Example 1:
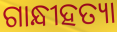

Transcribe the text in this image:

ଗାନ୍ଧୀହତ୍ୟା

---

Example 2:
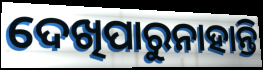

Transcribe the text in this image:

ଦେଖିପାରୁନାହାନ୍ତି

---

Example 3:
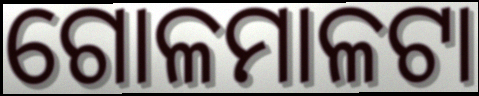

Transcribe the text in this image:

ଗୋଳମାଳଟା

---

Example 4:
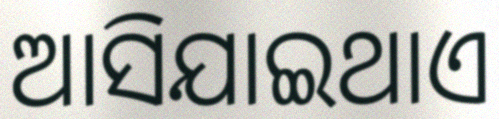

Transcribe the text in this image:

ଆସିଯାଇଥାଏ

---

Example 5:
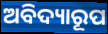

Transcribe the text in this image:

ଅବିଦ୍ୟାରୂପ